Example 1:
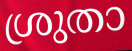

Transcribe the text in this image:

ശ്രുതാ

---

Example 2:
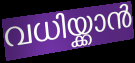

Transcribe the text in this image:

വധിയ്ക്കാൻ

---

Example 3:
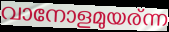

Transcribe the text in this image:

വാനോളമുയര്ന്ന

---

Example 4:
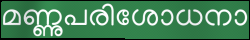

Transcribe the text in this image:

മണ്ണുപരിശോധനാ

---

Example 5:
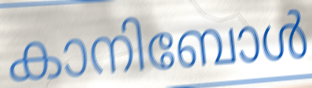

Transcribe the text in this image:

കാനിബോൾ